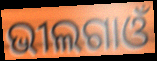
ଭୀଲଗାଓଁ